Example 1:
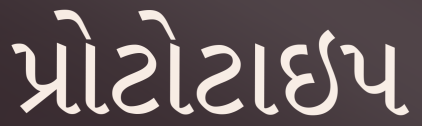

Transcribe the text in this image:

પ્રોટોટાઇપ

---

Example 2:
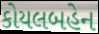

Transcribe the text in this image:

કોયલબહેન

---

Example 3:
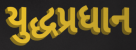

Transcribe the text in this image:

યુદ્ધપ્રધાન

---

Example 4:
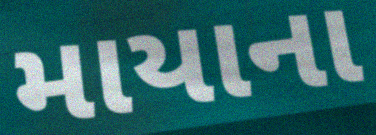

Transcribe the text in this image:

માયાના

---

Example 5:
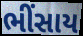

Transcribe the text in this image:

ભીંસાય